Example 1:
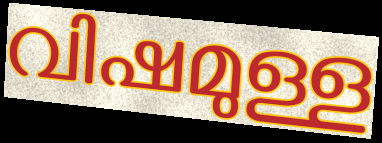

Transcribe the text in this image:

വിഷമുള്ള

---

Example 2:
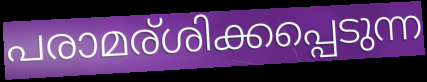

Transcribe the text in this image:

പരാമര്ശിക്കപ്പെടുന്ന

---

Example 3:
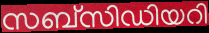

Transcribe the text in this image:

സബ്സിഡിയറി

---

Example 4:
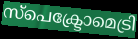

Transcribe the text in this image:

സ്പെക്ട്രോമെട്രി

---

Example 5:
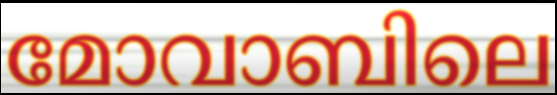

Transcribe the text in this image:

മോവാബിലെ